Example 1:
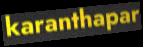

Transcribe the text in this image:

karanthapar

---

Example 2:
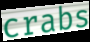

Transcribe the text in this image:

crabs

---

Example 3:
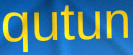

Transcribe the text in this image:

qutun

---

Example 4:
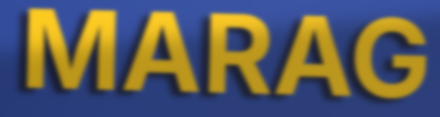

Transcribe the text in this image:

MARAG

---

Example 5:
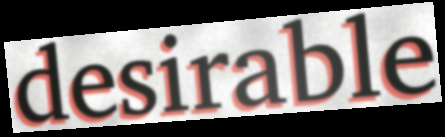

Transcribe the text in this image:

desirable